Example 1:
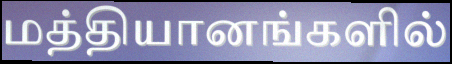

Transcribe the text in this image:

மத்தியானங்களில்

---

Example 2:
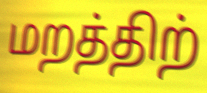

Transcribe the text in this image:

மறத்திற்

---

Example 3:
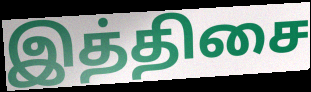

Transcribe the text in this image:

இத்திசை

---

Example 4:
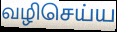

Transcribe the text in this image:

வழிசெய்ய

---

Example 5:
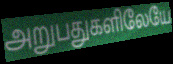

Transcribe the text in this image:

அறுபதுகளிலேயே